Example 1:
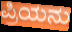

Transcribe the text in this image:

ಪ್ರಿಯನು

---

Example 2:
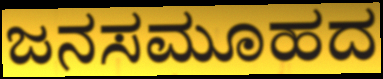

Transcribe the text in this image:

ಜನಸಮೂಹದ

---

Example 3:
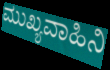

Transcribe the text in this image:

ಮುಖ್ಯವಾಹಿನಿ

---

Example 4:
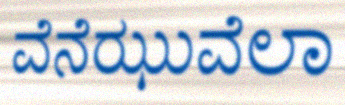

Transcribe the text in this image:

ವೆನೆಝುವೆಲಾ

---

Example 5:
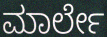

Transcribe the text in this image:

ಮಾರ್ಲೇ